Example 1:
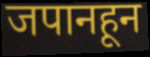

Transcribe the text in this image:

जपानहून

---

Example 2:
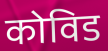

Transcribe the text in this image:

कोविड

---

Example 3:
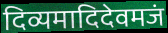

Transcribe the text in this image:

दिव्यमादिदेवमजं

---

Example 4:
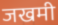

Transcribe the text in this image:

जखमी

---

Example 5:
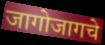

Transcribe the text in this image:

जागोजागचे